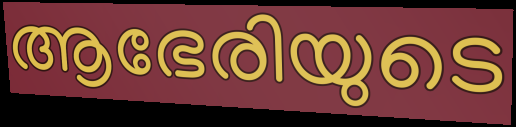
ആഭേരിയുടെ